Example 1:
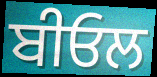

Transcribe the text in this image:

ਬੀਓਲ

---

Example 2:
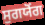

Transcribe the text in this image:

ਸੁਗਯੋਂਗ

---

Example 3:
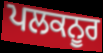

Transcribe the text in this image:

ਪਲਕਨੂਰ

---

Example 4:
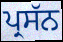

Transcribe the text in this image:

ਪ੍ਰਸੱਨ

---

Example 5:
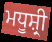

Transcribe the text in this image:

ਮਧੂਸ਼੍ਰੀ